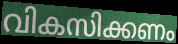
വികസിക്കണം